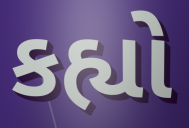
કહ્યો